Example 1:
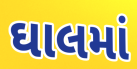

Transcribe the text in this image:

ઘાલમાં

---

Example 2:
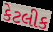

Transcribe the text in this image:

કેટલીક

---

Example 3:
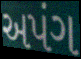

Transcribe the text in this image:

અપંગ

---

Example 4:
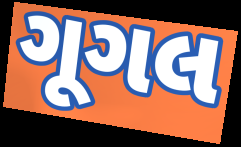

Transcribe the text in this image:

ગૂગલ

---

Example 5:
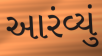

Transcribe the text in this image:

આરંવ્યું